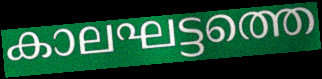
കാലഘട്ടത്തെ